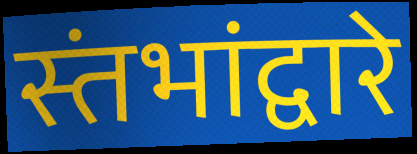
स्तंभांद्वारे